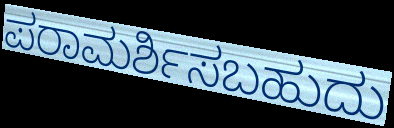
ಪರಾಮರ್ಶಿಸಬಹುದು